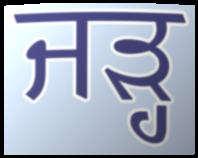
ਜੜ੍ਹ